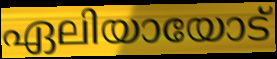
ഏലിയായോട്